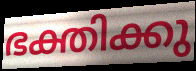
ഭക്തിക്കു